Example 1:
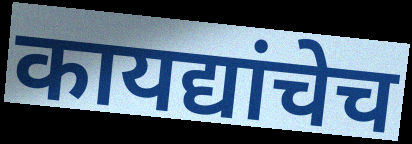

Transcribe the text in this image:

कायद्यांचेच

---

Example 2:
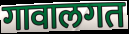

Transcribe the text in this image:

गावालगत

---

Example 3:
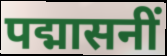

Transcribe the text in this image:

पद्मासनीं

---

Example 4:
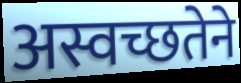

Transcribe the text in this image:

अस्वच्छतेने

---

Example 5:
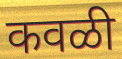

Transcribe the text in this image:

कवळी